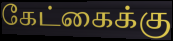
கேட்கைக்கு